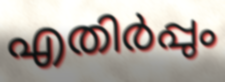
എതിർപ്പും